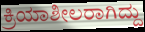
ಕ್ರಿಯಾಶೀಲರಾಗಿದ್ದು